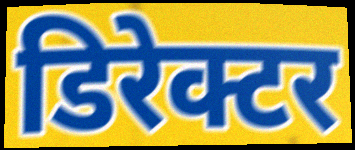
डिरेक्टर